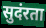
सुदंरता